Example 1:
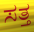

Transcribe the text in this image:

ಸತ್ತ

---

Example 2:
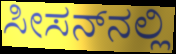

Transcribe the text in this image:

ಸೀಸನ್‌ನಲ್ಲಿ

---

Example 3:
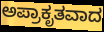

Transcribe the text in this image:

ಅಪ್ರಾಕೃತವಾದ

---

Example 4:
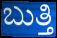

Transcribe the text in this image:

ಬುತ್ತಿ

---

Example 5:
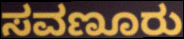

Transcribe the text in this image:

ಸವಣೂರು